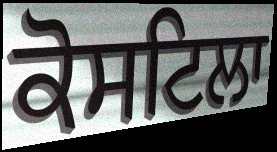
ਕੋਸਟਿਲਾ